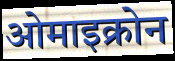
ओमाइक्रोन